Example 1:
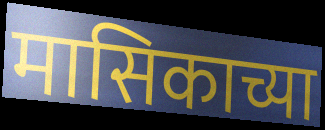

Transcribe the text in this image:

मासिकाच्या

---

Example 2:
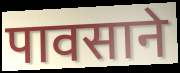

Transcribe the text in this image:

पावसाने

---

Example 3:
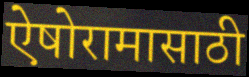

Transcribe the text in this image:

ऐषोरामासाठी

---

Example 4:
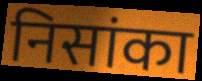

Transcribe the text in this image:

निसांका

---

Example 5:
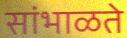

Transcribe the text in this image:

सांभाळते